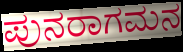
ಪುನರಾಗಮನ